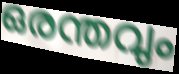
ഒരന്തവും